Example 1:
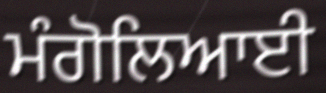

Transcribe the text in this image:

ਮੰਗੋਲਿਆਈ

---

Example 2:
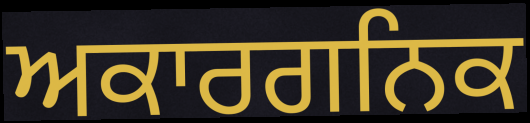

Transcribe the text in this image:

ਅਕਾਰਗਨਿਕ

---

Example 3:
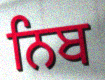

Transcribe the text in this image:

ਨਿਬ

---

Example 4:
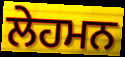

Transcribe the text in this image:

ਲੇਹਮਨ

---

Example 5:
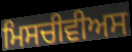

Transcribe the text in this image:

ਮਿਸਚੀਵੀਅਸ